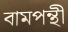
বামপন্থী